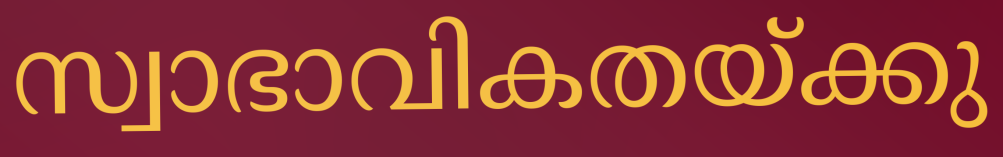
സ്വാഭാവികതയ്ക്കു